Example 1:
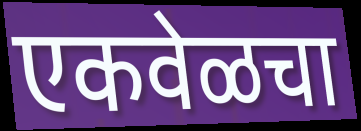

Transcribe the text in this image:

एकवेळचा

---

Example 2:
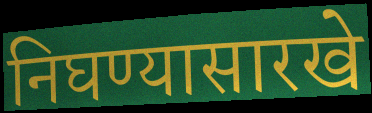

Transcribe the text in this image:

निघण्यासारखे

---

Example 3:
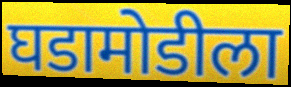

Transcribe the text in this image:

घडामोडीला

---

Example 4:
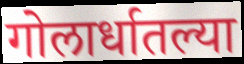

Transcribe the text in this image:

गोलार्धातल्या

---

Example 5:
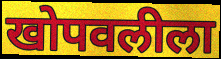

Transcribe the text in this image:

खोपवलीला